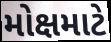
મોક્ષમાટે